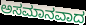
ಅಸಮಾನವಾದ